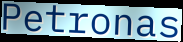
Petronas